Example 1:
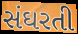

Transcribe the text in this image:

સંઘરતી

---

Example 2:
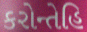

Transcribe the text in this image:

કરોન્તેહિ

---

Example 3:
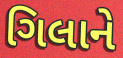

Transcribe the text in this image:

ગિલાને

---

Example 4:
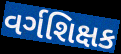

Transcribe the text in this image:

વર્ગશિક્ષક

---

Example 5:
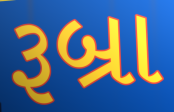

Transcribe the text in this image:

રૂબ્રા